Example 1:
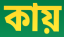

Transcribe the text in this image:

কায়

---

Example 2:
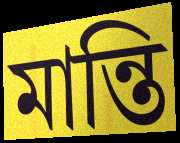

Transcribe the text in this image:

মান্তি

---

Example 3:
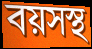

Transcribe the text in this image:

বয়সস্থ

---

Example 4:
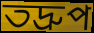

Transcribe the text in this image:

তদ্ৰুপ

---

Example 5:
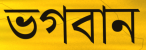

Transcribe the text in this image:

ভগবান